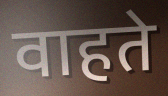
वाहते